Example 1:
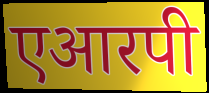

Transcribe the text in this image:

एआरपी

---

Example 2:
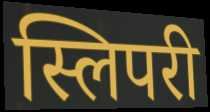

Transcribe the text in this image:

स्लिपरी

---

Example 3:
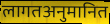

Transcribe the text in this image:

लागतअनुमानित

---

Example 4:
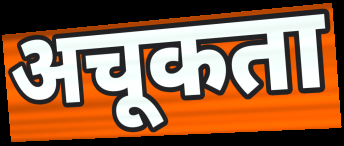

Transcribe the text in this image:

अचूकता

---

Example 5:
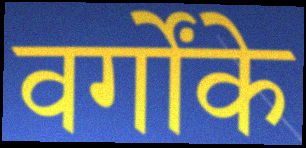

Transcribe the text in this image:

वर्गोंके